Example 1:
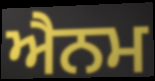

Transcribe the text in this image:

ਐਨਮ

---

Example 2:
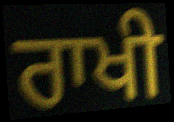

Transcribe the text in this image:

ਰਾਖੀ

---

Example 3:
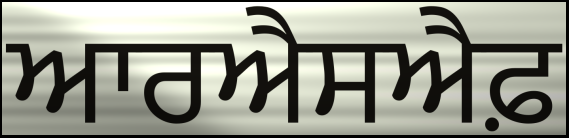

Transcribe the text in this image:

ਆਰਐਸਐਫ਼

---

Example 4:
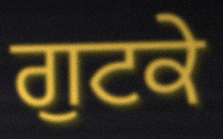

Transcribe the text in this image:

ਗੁਟਕੇ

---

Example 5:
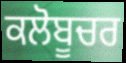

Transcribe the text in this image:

ਕਲੋਬੂਚਰ